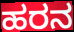
ಹರನ